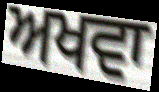
ਅਖਵਾ